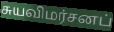
சுயவிமர்சனப்